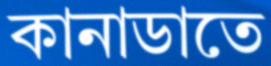
কানাডাতে